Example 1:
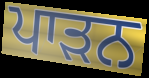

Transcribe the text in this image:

ਪਾੜਨ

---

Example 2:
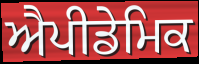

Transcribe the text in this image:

ਐਪੀਡੇਮਿਕ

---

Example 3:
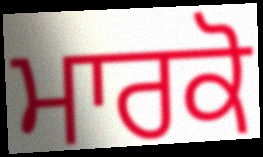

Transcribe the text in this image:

ਮਾਰਕੋ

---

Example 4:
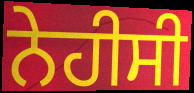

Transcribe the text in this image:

ਨੇਹੀਸੀ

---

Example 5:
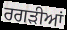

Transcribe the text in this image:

ਰਗੜੀਆਂ